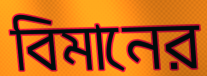
বিমানের